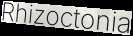
Rhizoctonia